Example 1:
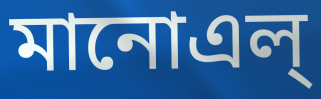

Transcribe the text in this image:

মানোএল্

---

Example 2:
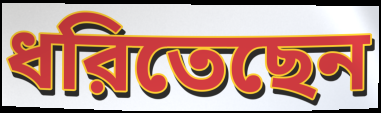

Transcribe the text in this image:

ধরিতেছেন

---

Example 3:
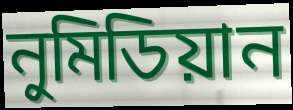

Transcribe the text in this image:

নুমিডিয়ান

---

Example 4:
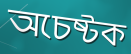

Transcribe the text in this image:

অচেষ্টক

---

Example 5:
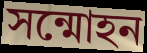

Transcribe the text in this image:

সন্মোহন